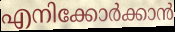
എനിക്കോർക്കാൻ